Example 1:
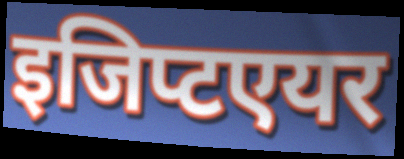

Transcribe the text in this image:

इजिप्टएयर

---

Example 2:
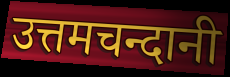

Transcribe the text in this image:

उत्तमचन्दानी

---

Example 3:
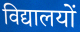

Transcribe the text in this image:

विद्यालयों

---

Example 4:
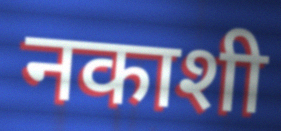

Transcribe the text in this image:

नकाशी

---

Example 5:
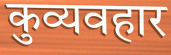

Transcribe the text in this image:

कुव्यवहार